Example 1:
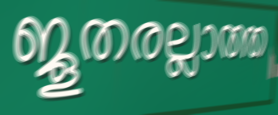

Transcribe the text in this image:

ജൂതരല്ലാത്ത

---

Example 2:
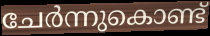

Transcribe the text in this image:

ചേർന്നുകൊണ്ട്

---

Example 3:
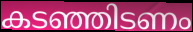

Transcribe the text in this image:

കടഞ്ഞിടണം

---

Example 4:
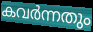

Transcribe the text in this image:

കവർന്നതും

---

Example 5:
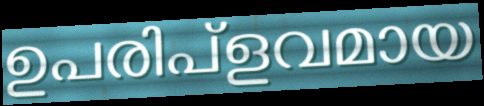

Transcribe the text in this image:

ഉപരിപ്ളവമായ